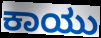
ಕಾಯು